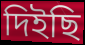
দিইছি